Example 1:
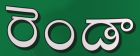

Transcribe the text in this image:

రెండా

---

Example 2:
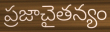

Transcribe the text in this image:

ప్రజాచైతన్యం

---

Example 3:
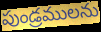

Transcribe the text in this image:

పుండ్రములను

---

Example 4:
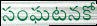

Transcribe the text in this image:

సంఘటనకో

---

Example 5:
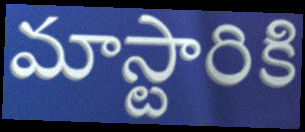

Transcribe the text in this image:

మాస్టారికి